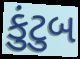
કુંટુબ